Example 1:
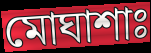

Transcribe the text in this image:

মোঘাশাঃ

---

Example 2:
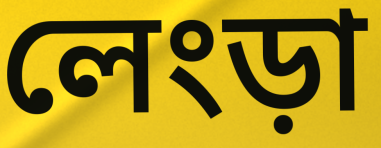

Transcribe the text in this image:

লেংড়া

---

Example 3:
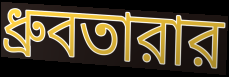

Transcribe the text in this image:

ধ্রুবতারার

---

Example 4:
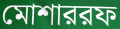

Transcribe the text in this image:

মোশাররফ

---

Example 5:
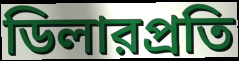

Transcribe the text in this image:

ডিলারপ্রতি